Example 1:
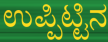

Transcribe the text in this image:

ಉಪ್ಪಿಟ್ಟಿನ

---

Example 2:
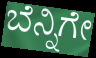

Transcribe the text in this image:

ಬೆನ್ನಿಗೇ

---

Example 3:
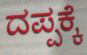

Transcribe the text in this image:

ದಪ್ಪಕ್ಕೆ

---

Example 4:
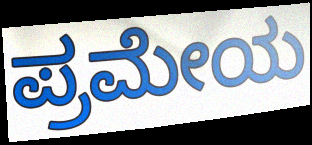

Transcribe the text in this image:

ಪ್ರಮೇಯ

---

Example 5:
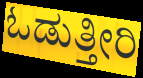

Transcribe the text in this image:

ಓಡುತ್ತೀರಿ